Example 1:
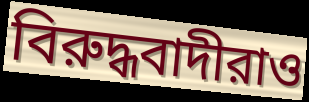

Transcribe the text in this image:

বিরুদ্ধবাদীরাও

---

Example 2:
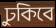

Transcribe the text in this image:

ঢুকিবে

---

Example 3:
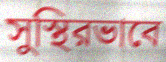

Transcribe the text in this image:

সুস্থিরভাবে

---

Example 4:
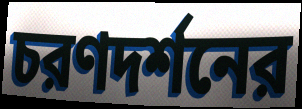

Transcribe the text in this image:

চরণদর্শনের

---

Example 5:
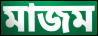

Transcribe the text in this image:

মাজম